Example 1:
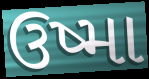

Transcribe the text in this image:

ઉષ્મા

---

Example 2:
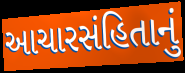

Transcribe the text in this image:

આચારસંહિતાનું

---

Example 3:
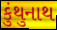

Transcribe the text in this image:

કુંથુનાથ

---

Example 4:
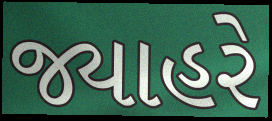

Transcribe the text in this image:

જ્યાહરે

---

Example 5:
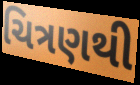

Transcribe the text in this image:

ચિત્રણથી